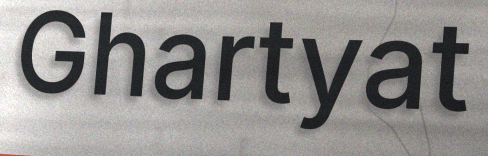
Ghartyat